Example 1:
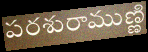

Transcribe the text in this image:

పరశురాముణ్ణి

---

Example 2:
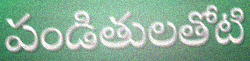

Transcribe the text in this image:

పండితులతోటి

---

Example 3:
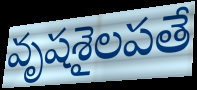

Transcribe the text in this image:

వృషశైలపతే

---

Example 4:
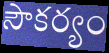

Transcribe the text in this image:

సౌకర్యం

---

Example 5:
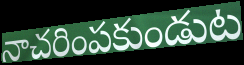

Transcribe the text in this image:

నాచరింపకుండుట